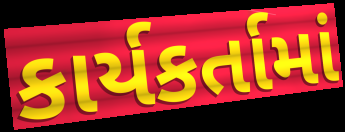
કાર્યકર્તામાં